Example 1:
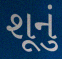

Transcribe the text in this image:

શૂનું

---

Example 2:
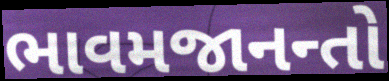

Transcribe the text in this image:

ભાવમજાનન્તો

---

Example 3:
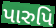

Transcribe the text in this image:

પારુપિ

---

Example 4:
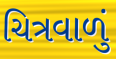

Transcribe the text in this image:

ચિત્રવાળું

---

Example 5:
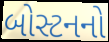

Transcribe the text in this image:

બોસ્ટનનો